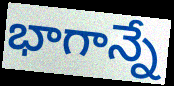
భాగాన్నే